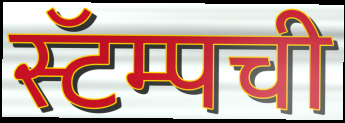
स्टॅम्पची